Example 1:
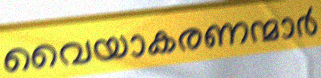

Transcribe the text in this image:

വൈയാകരണന്മാർ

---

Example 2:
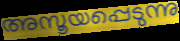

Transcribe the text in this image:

അസൂയപ്പെടുന്നു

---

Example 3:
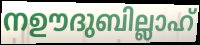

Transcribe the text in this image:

നഊദുബില്ലാഹ്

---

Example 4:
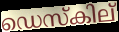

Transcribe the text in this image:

ഡെസ്കില്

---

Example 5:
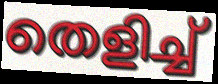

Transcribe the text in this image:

തെളിച്ച്